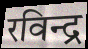
रविन्द्र